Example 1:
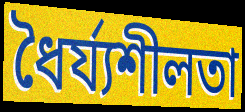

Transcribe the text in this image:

ধৈর্য্যশীলতা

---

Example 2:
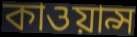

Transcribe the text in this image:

কাওয়ান্স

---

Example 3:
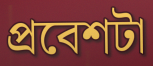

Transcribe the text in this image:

প্রবেশটা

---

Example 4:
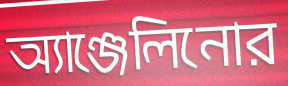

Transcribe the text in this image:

অ্যাঞ্জেলিনোর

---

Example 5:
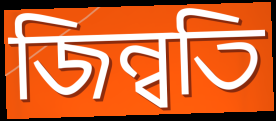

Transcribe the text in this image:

জিন্বতি